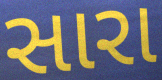
સારા